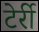
टेर्री